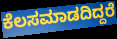
ಕೆಲಸಮಾಡದಿದ್ದರೆ